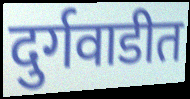
दुर्गवाडीत